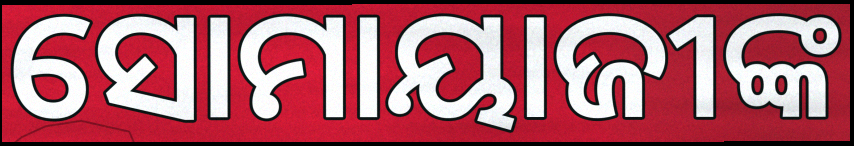
ସୋମାୟାଜୀଙ୍କ